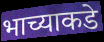
भाच्याकडे